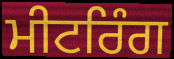
ਮੀਟਰਿੰਗ